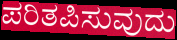
ಪರಿತಪಿಸುವುದು